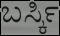
ಬರ್ಸ್ಕಿ